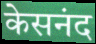
केसनंद